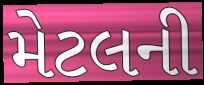
મેટલની